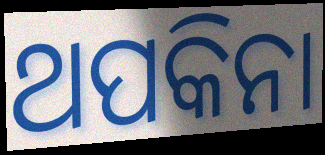
ଥପକିନା